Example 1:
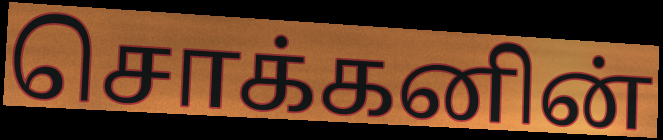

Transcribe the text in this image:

சொக்கனின்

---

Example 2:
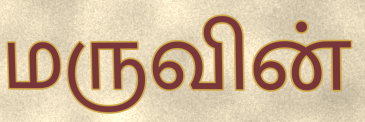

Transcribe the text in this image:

மருவின்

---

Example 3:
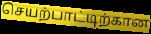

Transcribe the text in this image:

செயற்பாட்டிற்கான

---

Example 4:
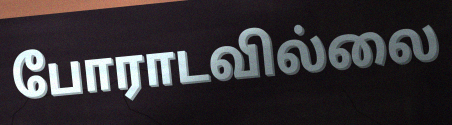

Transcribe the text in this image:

போராடவில்லை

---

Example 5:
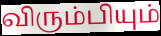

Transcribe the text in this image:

விரும்பியும்